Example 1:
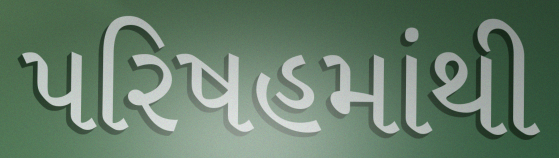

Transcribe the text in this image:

પરિષહમાંથી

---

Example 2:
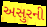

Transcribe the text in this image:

અસુરની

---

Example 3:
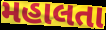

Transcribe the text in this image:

મહાલતા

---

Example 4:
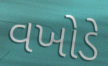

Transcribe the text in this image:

વખોડે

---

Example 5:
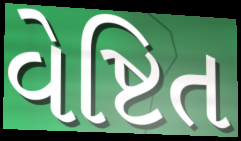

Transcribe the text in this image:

વેષ્ટિત